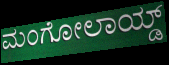
ಮಂಗೋಲಾಯ್ಡ್